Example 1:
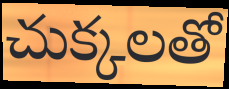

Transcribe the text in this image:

చుక్కలతో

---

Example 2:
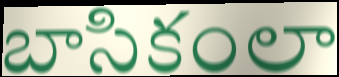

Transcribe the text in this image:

బాసికంలా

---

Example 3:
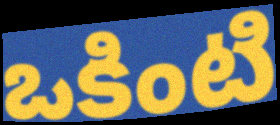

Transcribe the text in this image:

ఒకింటి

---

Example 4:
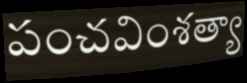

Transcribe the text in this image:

పంచవింశత్యా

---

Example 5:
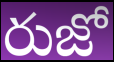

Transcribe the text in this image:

రుజో